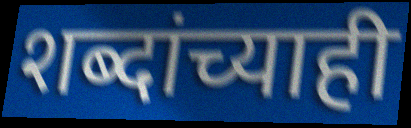
शब्दांच्याही